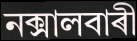
নক্সালবাৰী